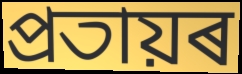
প্ৰতায়ৰ